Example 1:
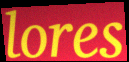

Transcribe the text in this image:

lores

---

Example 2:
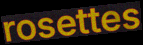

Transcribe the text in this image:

rosettes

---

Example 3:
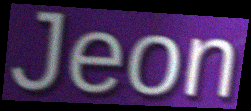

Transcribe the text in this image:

Jeon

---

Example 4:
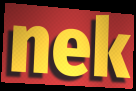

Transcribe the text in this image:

nek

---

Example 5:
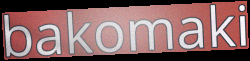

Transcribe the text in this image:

bakomaki